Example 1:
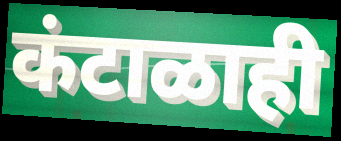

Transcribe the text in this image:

कंटाळाही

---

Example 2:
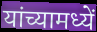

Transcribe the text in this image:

यांच्यामध्यें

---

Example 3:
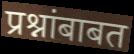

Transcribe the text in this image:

प्रश्नांबाबत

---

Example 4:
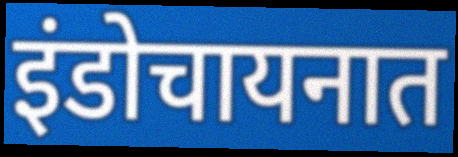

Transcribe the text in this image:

इंडोचायनात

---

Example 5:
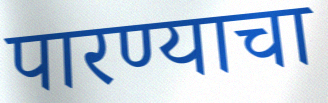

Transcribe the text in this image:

पारण्याचा